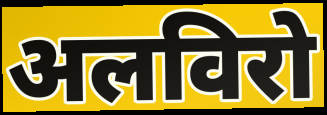
अलविरो